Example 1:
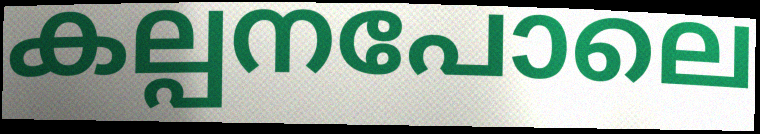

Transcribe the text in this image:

കല്പനപോലെ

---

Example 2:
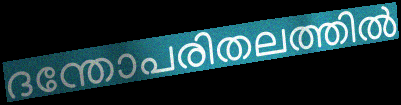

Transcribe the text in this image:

ദന്തോപരിതലത്തിൽ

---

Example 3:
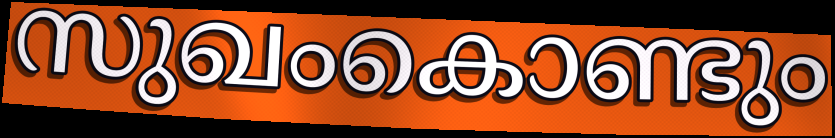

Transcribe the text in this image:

സുഖംകൊണ്ടും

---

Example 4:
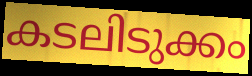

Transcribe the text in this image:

കടലിടുക്കം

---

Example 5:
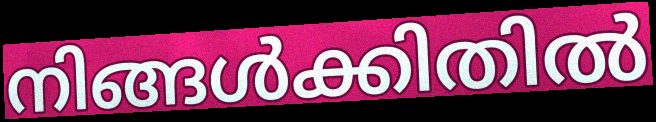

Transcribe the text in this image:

നിങ്ങൾക്കിതിൽ